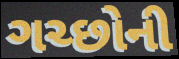
ગચ્છોની